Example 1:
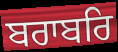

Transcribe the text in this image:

ਬਰਾਬਰਿ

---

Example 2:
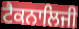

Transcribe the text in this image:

ਟੈਕਨਾਲਿਜੀ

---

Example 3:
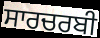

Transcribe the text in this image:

ਸਾਰਚਰਬੀ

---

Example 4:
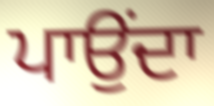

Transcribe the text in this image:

ਪਾਉਂਦਾ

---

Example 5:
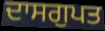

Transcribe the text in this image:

ਦਾਸਗੁਪਤ